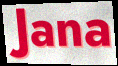
Jana